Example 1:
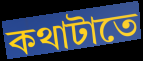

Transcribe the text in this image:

কথাটাতে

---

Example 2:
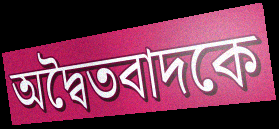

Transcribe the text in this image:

অদ্বৈতবাদকে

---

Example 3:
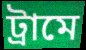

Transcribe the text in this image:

ট্রামে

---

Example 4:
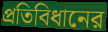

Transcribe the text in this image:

প্রতিবিধানের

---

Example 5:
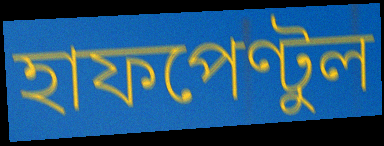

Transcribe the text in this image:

হাফপেণ্টুল